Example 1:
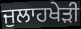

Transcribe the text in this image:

ਜੁਲਾਹਖੇੜੀ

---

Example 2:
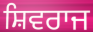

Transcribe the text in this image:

ਸ਼ਿਵਰਾਜ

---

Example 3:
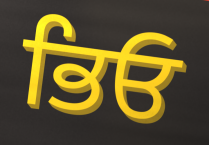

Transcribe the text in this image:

ਭਿਓ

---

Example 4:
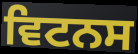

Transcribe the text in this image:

ਵਿਟਨਸ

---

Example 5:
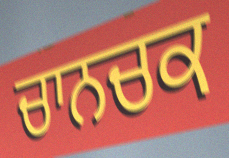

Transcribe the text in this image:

ਚਾਨਚਕ